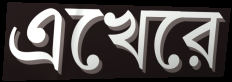
এখেরে